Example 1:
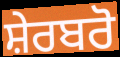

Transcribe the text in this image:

ਸ਼ੇਰਬਰੋ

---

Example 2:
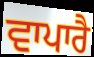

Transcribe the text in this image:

ਵਾਪਾਰੈ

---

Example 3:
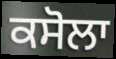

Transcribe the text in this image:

ਕਸੋਲਾ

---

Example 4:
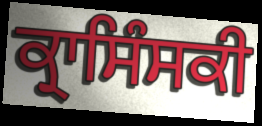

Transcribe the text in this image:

ਕ੍ਰਾਸਿੰਸਕੀ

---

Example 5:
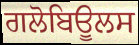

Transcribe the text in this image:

ਗਲੋਬਿਊਲਸ